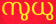
സുധു